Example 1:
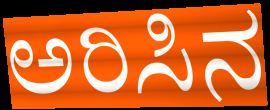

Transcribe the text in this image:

ಅರಿಸಿನ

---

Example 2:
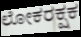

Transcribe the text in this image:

ಲೋಕರಕ್ಷಕ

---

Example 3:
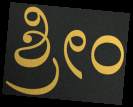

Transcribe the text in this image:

ಶ್ರೀಂ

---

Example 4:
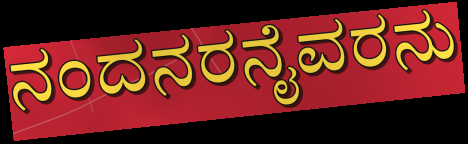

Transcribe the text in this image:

ನಂದನರನೈವರನು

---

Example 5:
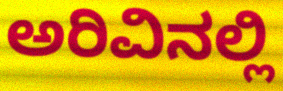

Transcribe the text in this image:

ಅರಿವಿನಲ್ಲಿ